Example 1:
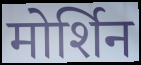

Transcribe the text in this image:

मोर्शिन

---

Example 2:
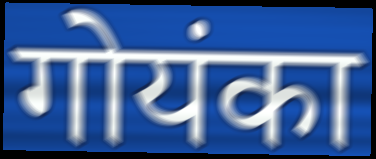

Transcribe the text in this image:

गोयंका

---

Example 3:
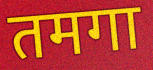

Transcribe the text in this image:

तमगा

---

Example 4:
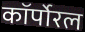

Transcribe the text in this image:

कॉर्पोरल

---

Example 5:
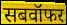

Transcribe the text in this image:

सबवॉफर